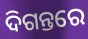
ଦିଗନ୍ତରେ